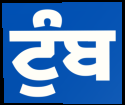
ਟੁੰਬ